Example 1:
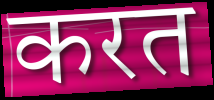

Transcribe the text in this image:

करत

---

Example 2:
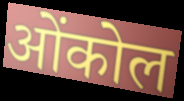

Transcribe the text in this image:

ओंकोल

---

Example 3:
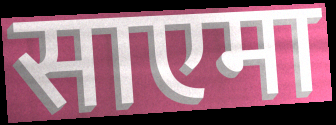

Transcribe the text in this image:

साएमा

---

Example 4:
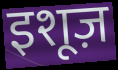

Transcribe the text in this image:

इशूज़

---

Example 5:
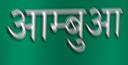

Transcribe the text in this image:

आम्बुआ